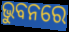
ଭୁବନରେ